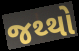
જથ્થો